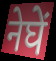
नेघें